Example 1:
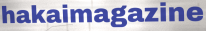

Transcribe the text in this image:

hakaimagazine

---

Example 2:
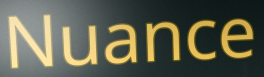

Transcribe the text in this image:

Nuance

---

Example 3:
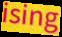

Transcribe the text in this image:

ising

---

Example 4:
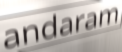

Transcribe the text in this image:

andaram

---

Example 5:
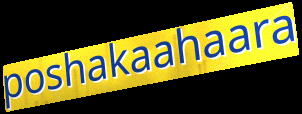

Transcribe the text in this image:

poshakaahaara